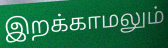
இறக்காமலும்